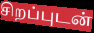
சிறப்புடன்